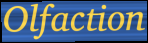
Olfaction